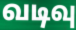
வடிவு